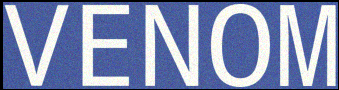
VENOM